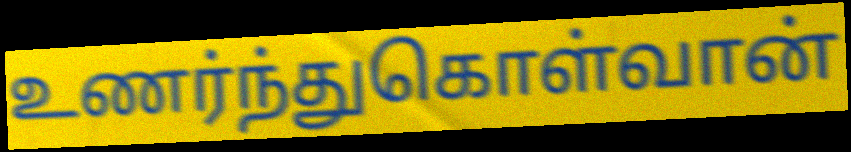
உணர்ந்துகொள்வான்